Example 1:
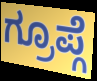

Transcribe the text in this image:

ಗ್ರೂಪ್ಗೆ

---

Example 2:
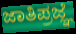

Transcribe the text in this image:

ಜಾತಿಪ್ರಜ್ಞೆ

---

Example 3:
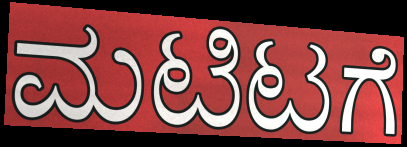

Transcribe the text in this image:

ಮಟಿಟಗೆ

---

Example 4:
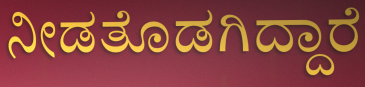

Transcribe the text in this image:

ನೀಡತೊಡಗಿದ್ದಾರೆ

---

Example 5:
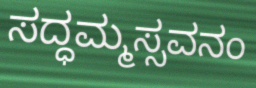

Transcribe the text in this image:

ಸದ್ಧಮ್ಮಸ್ಸವನಂ